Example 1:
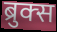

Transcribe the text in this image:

ब्रुक्‍स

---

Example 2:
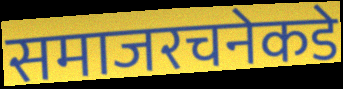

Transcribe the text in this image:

समाजरचनेकडे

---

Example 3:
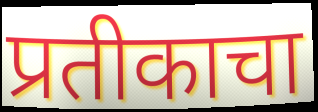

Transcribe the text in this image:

प्रतीकाचा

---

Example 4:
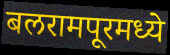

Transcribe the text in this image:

बलरामपूरमध्ये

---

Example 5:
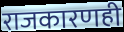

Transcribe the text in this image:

राजकारणही